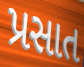
પ્રસાત